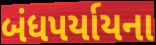
બંધપર્યાયના